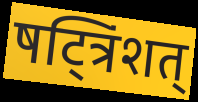
षट्त्रिंशत्